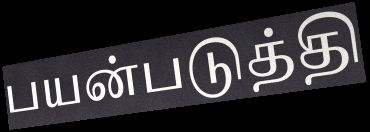
பயன்படுத்தி